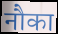
नौका